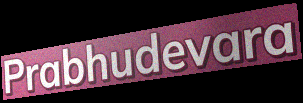
Prabhudevara